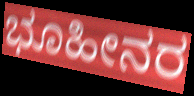
ಭೂಹೀನರ